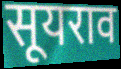
सूयराव